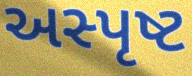
અસ્પૃષ્ટ